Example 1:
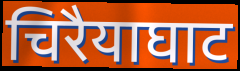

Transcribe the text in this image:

चिरैयाघाट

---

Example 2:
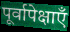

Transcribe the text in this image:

पूर्वापेक्षाएँ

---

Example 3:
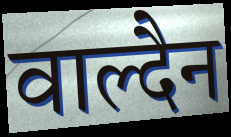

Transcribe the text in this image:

वाल्दैन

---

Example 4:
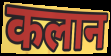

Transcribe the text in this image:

कलान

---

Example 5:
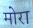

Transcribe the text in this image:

मोरा